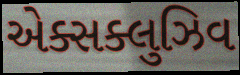
એક્સક્લુઝિવ